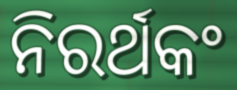
ନିରର୍ଥକଂ